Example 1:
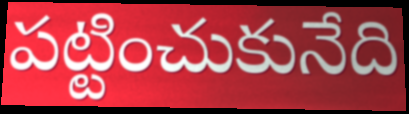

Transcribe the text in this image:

పట్టించుకునేది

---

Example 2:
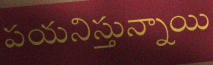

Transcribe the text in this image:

పయనిస్తున్నాయి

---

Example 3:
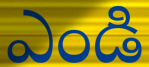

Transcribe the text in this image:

ఎండి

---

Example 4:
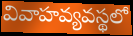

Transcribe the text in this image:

వివాహవ్యవస్థలో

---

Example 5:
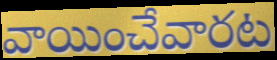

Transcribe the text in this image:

వాయించేవారట